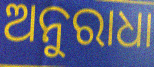
ଅନୁରାଧା